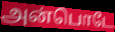
அன்பொடே